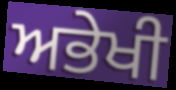
ਅਭੇਖੀ